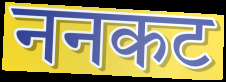
ननकट